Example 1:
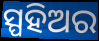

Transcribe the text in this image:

ସ୍ପହିଅର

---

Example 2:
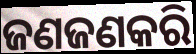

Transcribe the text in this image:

ଜଣଜଣକରି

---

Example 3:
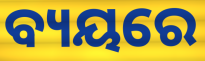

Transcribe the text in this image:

ବ୍ୟୟରେ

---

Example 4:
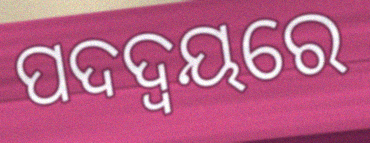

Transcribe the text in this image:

ପଦଦ୍ୱୟରେ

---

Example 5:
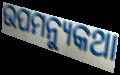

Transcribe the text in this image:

ଉପମନ୍ୟୁକଥା